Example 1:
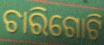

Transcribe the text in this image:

ଚାରିଗୋଟି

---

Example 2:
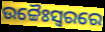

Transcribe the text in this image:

ଉଚ୍ଚୈଃସ୍ୱରରେ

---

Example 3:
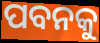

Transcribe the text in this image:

ପବନକୁ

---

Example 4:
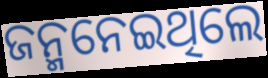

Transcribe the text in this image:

ଜନ୍ମନେଇଥିଲେ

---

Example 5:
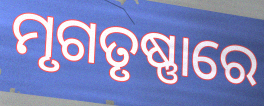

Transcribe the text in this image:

ମୃଗତୃଷ୍ଣାରେ